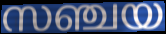
സഞ്ചയ